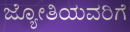
ಜ್ಯೋತಿಯವರಿಗೆ